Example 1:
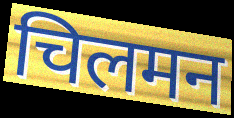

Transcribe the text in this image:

चिलमन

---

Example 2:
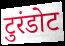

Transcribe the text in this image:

टुरंडोट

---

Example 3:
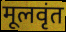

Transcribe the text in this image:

मूलवृंत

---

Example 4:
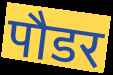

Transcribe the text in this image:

पौडर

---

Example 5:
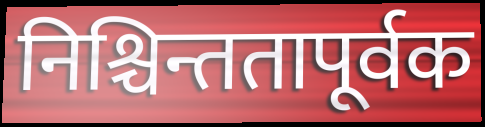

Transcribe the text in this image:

निश्चिन्ततापूर्वक